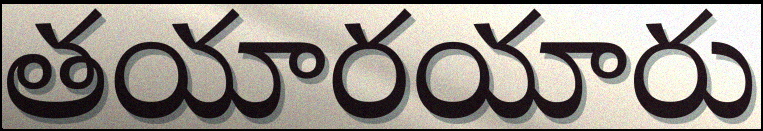
తయారయారు